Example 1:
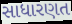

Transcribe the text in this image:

સાધારણત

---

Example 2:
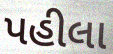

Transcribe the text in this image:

પહીલા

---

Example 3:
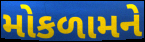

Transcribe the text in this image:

મોકળામને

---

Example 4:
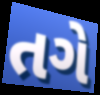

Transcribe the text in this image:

તગે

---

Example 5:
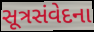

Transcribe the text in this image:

સૂત્રસંવેદના